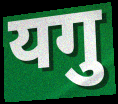
यगु